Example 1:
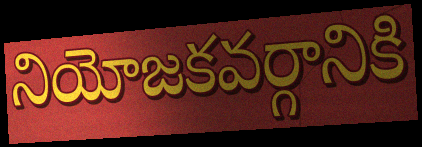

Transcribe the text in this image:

నియోజకవర్గానికి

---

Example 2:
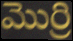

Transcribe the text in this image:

మొర్రి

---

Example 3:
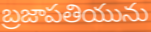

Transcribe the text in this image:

బ్రజాపతియును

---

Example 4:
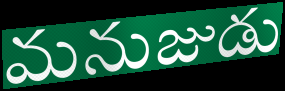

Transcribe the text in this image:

మనుజుడు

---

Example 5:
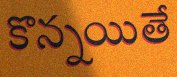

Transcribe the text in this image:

కొన్నయితే